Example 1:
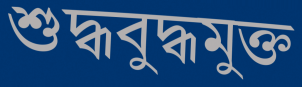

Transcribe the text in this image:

শুদ্ধবুদ্ধমুক্ত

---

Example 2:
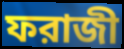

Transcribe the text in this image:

ফরাজী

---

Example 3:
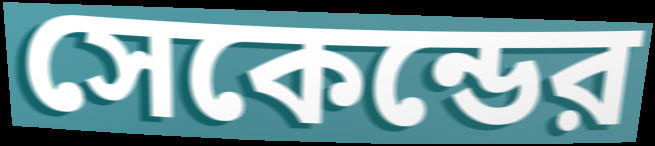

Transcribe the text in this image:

সেকেন্ডের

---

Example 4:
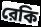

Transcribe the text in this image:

রেকি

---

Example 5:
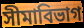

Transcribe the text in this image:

সীমাবিভাগ